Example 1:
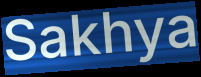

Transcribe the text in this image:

Sakhya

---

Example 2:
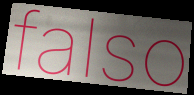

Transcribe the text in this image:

falso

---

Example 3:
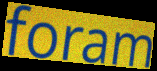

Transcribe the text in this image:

foram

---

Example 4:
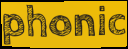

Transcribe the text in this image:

phonic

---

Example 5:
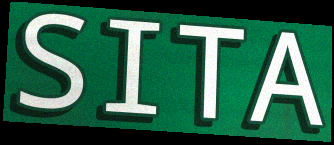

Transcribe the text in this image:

SITA